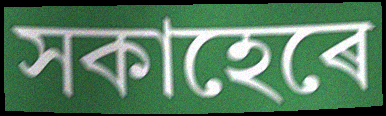
সকাহেৰে